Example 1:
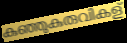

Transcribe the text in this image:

കുഞ്ഞുകുരുവികള്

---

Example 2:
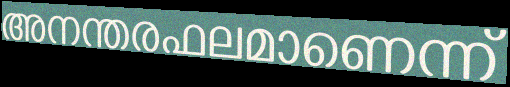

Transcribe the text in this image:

അനന്തരഫലമാണെന്ന്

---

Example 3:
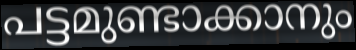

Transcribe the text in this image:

പട്ടമുണ്ടാക്കാനും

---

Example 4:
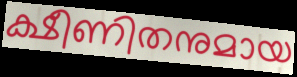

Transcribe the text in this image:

ക്ഷീണിതനുമായ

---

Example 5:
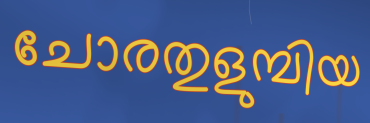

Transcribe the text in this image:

ചോരതുളുമ്പിയ